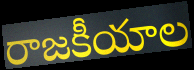
రాజకీయాల